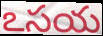
ఽసయ